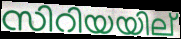
സിറിയയില്